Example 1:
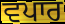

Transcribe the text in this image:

ਵਪਾਰ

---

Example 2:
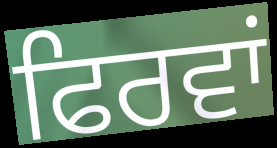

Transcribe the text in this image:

ਫਿਰਵਾਂ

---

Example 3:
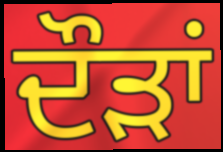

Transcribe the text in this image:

ਦੌੜਾਂ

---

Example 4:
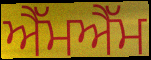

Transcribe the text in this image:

ਐੱਮਐੱਮ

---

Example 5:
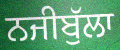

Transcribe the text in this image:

ਨਜੀਬੁੱਲਾ